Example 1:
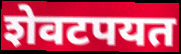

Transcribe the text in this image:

शेवटपयत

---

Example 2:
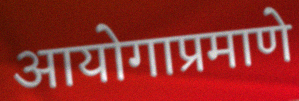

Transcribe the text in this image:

आयोगाप्रमाणे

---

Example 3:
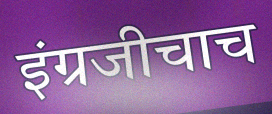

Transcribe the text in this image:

इंग्रजीचाच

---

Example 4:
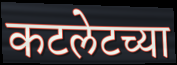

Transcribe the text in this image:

कटलेटच्या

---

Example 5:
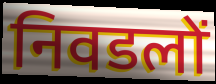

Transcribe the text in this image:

निवडलों